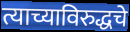
त्याच्याविरुद्धचे